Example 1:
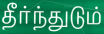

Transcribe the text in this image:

தீர்ந்துடும்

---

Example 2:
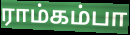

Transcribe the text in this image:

ராம்கம்பா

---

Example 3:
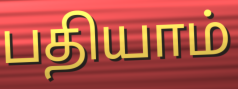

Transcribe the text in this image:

பதியாம்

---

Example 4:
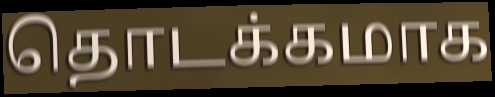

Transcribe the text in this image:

தொடக்கமாக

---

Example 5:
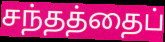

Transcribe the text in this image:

சந்தத்தைப்